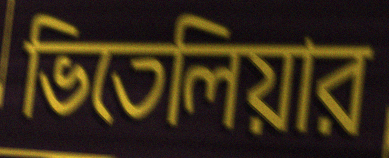
ভিতেলিয়ার